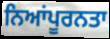
ਨਿਆਂਪੂਰਨਤਾ